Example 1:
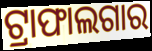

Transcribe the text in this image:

ଟ୍ରାଫାଲଗାର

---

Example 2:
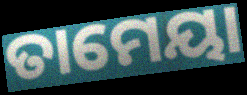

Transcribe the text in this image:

ତାମେୟା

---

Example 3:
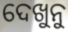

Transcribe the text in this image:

ଦେଖୁନୁ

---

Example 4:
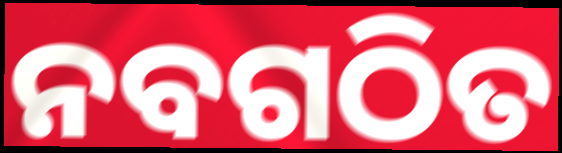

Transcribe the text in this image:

ନବଗଠିତ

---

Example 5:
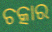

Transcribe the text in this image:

ଚତ୍କାର